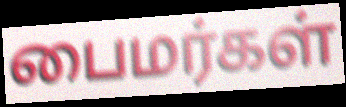
பைமர்கள்